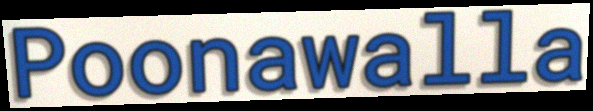
Poonawalla